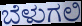
ಬೆಳುಗಲಿ